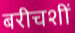
बरीचशीं